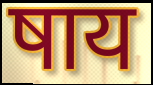
षाय